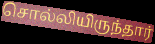
சொல்லியிருந்தார்